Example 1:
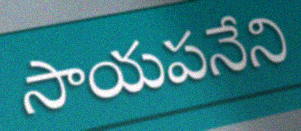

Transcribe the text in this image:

సాయపనేని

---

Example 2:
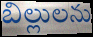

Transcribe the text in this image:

బిల్లులను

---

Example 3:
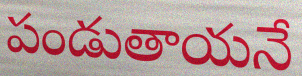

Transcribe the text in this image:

పండుతాయనే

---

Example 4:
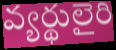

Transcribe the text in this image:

వ్యర్థులైరి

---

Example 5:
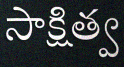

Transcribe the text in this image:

సాక్షిత్వ